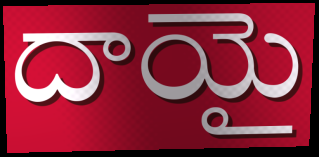
దాయై